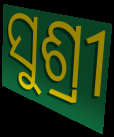
ସୁଶ୍ରୀ